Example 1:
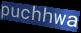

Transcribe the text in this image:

puchhwa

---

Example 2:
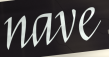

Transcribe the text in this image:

nave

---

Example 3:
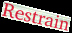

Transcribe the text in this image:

Restrain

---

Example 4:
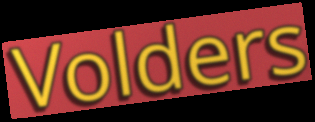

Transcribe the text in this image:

Volders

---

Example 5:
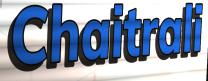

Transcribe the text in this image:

Chaitrali